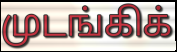
முடங்கிக்